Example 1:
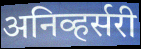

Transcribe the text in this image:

अनिव्हर्सरी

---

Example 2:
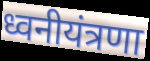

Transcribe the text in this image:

ध्वनीयंत्रणा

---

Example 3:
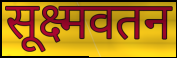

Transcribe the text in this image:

सूक्ष्मवतन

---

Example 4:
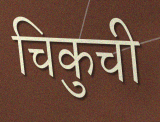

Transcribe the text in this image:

चिकुची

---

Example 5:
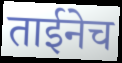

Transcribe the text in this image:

ताईनेच